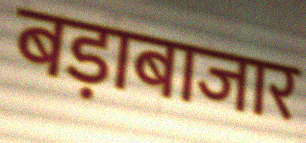
बड़ाबाजार